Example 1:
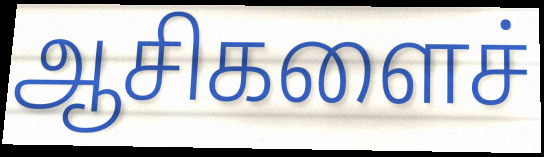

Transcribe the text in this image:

ஆசிகளைச்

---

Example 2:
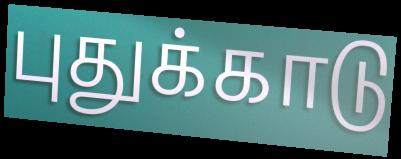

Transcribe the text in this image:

புதுக்காடு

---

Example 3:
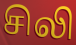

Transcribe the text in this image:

சிலி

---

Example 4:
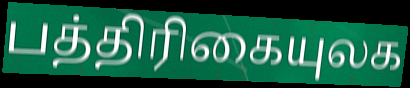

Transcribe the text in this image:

பத்திரிகையுலக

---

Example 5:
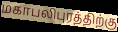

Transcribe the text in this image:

மகாபலிபுரத்திற்கு